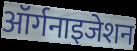
ऑर्गनाइजेशन